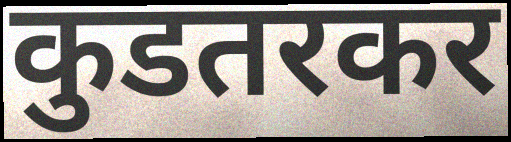
कुडतरकर